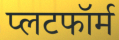
प्लटफॉर्म